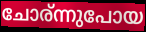
ചോര്ന്നുപോയ